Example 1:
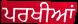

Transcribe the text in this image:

ਪਰਖੀਆਂ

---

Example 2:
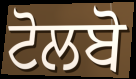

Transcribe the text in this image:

ਟੋਲਬੋ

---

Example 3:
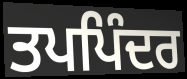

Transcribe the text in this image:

ਤਪਪਿੰਦਰ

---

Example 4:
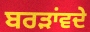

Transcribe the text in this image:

ਬਰੜਾਂਵਦੇ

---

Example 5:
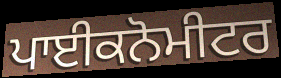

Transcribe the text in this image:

ਪਾਈਕਨੋਮੀਟਰ